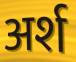
अर्श